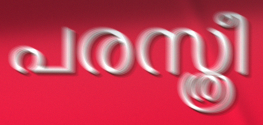
പരസ്ത്രീ